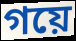
গয়ে